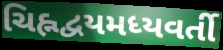
ચિહ્નદ્વયમધ્યવર્તી